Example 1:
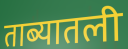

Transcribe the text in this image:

ताब्यातली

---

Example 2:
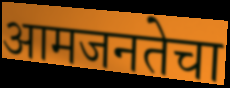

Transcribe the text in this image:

आमजनतेचा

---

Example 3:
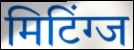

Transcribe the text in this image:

मिटिंग्ज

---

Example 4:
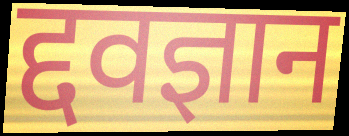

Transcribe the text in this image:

द्दवज्ञान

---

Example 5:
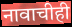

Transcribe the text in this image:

नावाचीही